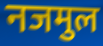
नजमुल